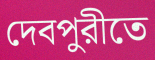
দেবপুরীতে